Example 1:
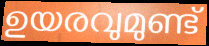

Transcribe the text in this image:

ഉയരവുമുണ്ട്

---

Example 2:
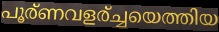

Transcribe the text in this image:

പൂര്ണവളര്ച്ചയെത്തിയ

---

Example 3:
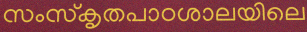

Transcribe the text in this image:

സംസ്കൃതപാഠശാലയിലെ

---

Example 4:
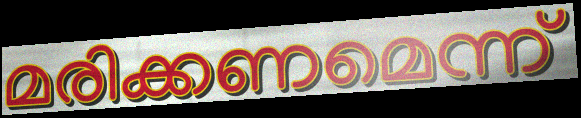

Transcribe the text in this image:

മരിക്കണമെന്ന്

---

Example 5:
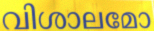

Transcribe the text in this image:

വിശാലമോ